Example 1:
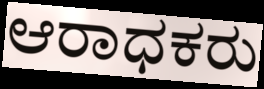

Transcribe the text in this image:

ಆರಾಧಕರು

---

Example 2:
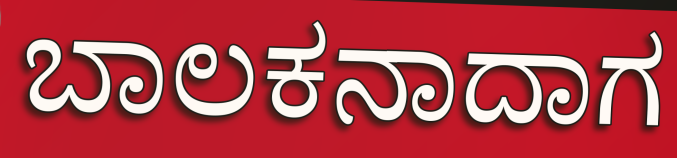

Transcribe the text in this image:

ಬಾಲಕನಾದಾಗ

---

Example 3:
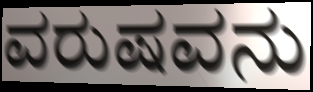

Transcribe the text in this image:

ವರುಷವನು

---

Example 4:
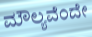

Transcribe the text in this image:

ಮೌಲ್ಯವೆಂದೇ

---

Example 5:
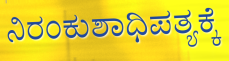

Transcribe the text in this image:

ನಿರಂಕುಶಾಧಿಪತ್ಯಕ್ಕೆ